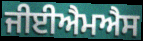
ਜੀਈਐਮਐਸ